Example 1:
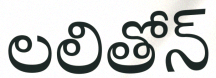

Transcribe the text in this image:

లలితోన్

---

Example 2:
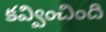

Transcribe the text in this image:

కవ్వించింది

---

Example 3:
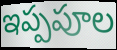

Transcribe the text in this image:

ఇప్పపూల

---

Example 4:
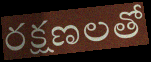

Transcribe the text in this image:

రక్షణలతో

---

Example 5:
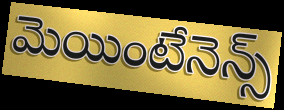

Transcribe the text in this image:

మెయింటేనెన్స్